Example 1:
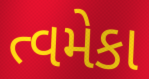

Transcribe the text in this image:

ત્વમેકા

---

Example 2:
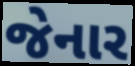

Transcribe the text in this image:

જેનાર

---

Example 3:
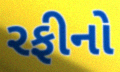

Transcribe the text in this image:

રફીનો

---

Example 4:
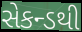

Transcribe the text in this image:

સેકન્ડથી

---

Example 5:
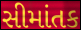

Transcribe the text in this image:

સીમાંતક